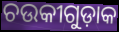
ଚଉକୀଗୁଡ଼ାକ